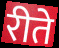
रीते